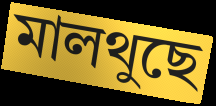
মালথুছে